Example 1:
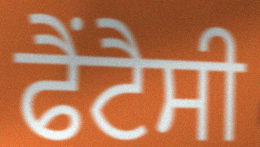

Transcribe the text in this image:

ਫੈਂਟੈਸੀ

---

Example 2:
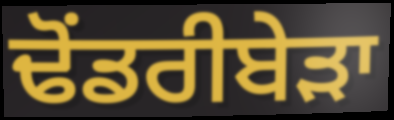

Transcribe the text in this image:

ਢੋਂਡਰੀਬੇੜਾ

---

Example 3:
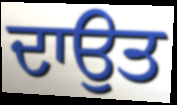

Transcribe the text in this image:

ਦਾਉਤ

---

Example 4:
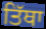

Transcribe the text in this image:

ਤਿੱਥਾ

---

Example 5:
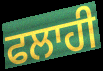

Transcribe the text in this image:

ਫਲਾਹੀ